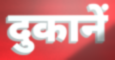
दुकानें